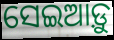
ସେଇଆଡ଼ୁ